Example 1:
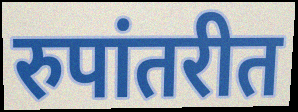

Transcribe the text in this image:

रुपांतरीत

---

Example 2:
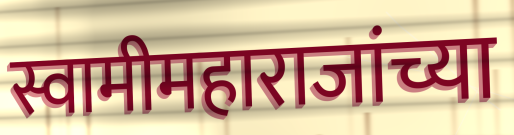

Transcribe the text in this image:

स्वामीमहाराजांच्या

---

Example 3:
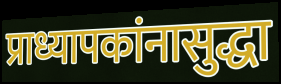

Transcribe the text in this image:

प्राध्यापकांनासुद्धा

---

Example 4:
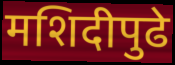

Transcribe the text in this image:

मशिदीपुढे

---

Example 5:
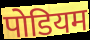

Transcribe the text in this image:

पोडियम